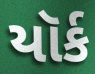
યૉર્ક